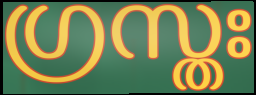
ഗ്രസ്തഃ